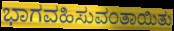
ಭಾಗವಹಿಸುವಂತಾಯಿತು